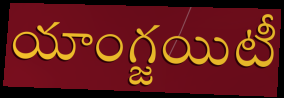
యాంగ్జయిటీ